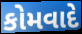
કોમવાદે